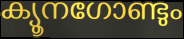
ക്യൂനഗോണ്ടും